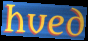
hued